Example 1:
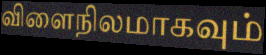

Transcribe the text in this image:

விளைநிலமாகவும்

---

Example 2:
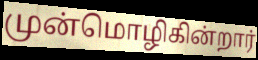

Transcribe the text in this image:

முன்மொழிகின்றார்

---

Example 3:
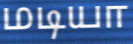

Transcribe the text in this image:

மடியா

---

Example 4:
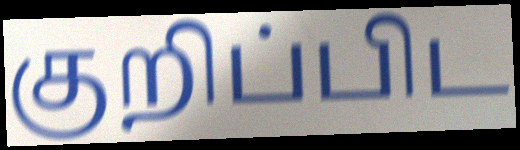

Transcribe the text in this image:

குறிப்பிட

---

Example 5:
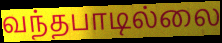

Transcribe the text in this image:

வந்தபாடில்லை